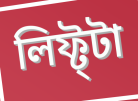
লিফ্ট্টা